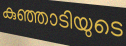
കുഞ്ഞാടിയുടെ